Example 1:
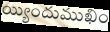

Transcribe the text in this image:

య్యిందుముఖిం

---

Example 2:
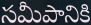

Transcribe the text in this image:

సమీపానికి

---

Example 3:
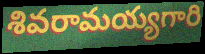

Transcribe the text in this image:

శివరామయ్యగారి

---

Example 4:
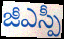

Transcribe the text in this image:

జీఎస్పీ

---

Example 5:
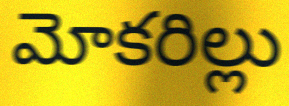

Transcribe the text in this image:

మోకరిల్లు